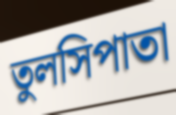
তুলসিপাতা